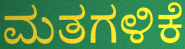
ಮತಗಳಿಕೆ